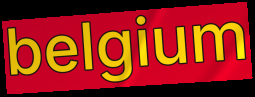
belgium